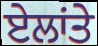
ਏਲਾਂਤੇ